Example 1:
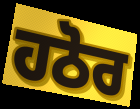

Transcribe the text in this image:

ਹਠੋਰ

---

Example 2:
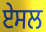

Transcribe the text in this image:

ਏਸਲ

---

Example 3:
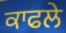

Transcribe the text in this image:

ਕਾਫਲੇ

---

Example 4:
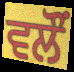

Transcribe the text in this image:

ਵਲੌੰ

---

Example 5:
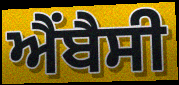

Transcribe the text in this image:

ਐਂਬੈਸੀ